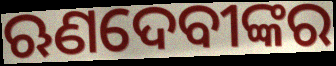
ଋଣଦେବୀଙ୍କର